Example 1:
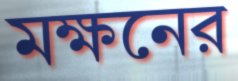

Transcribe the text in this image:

মক্ষনের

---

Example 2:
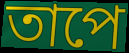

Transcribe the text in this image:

তাপে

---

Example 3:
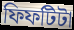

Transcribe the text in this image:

ফিফটিটা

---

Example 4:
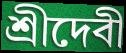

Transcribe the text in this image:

শ্রীদেবী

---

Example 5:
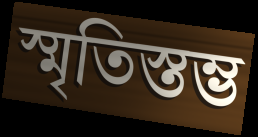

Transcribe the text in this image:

স্মৃতিস্তম্ভ